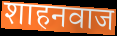
शाहनवाज